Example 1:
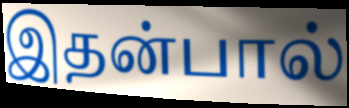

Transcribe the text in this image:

இதன்பால்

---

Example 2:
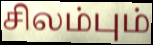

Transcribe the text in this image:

சிலம்பும்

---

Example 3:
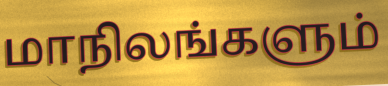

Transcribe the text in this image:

மாநிலங்களும்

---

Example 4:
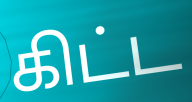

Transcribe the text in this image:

கிட்ட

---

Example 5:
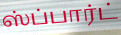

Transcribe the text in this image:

ஸ்ப்பார்ட்